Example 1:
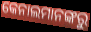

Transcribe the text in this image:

କେନାଲମାନଙ୍କରୁ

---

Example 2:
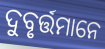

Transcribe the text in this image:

ଦୁବୃର୍ତ୍ତମାନେ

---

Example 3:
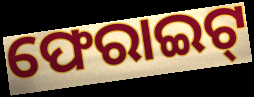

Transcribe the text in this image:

ଫେରାଇଟ୍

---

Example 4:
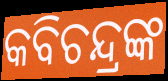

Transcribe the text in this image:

କବିଚନ୍ଦ୍ରଙ୍କ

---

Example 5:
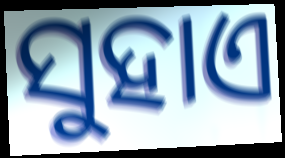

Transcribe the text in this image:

ସୁହାଏ